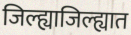
जिल्ह्याजिल्ह्यात